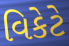
વિકેટે